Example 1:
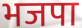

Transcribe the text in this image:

भजपा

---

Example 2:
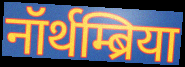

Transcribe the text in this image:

नॉर्थम्ब्रिया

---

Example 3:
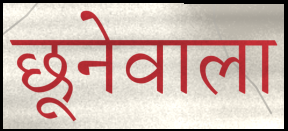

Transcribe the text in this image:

छूनेवाला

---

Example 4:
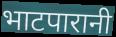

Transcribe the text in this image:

भाटपारानी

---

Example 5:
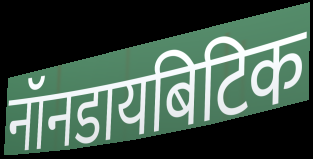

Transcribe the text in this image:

नॉनडायबिटिक